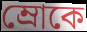
ম্রোকে